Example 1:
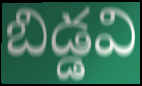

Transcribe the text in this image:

బిడ్డవి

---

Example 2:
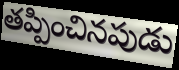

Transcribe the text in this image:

తప్పించినపుడు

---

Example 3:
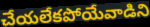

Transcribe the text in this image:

చేయలేకపోయేవాడిని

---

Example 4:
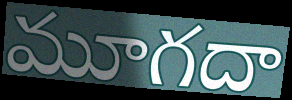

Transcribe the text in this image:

మూగదా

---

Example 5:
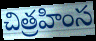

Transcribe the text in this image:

చిత్రహింస